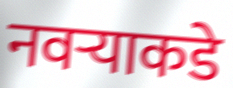
नवऱ्याकडे